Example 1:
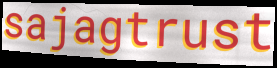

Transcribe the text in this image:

sajagtrust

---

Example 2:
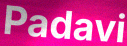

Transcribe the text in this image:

Padavi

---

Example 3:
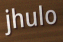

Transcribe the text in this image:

jhulo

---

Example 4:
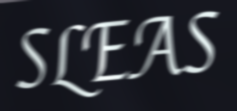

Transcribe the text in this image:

SLEAS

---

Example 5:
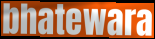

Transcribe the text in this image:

bhatewara